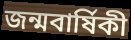
জন্মবার্ষিকী